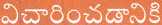
విచారించడానికి